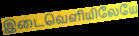
இடைவெளியிலேயே